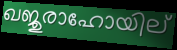
ഖജുരാഹോയില്